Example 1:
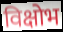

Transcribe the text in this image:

विक्षोभ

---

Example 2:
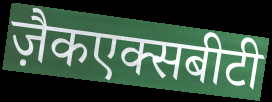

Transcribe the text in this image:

ज़ैकएक्सबीटी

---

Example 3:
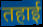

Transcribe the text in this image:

तहाई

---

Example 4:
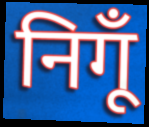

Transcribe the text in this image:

निगूँ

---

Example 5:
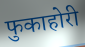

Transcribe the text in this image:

फुकाहोरी